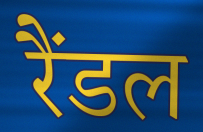
रैंडल